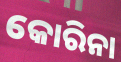
କୋରିନା